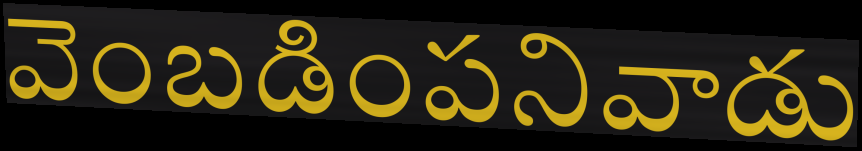
వెంబడింపనివాడు